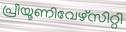
പ്രീയൂണിവേഴ്സിറ്റി